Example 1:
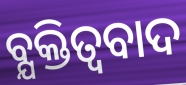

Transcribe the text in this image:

ବ୍ଯକ୍ତିତ୍ଵବାଦ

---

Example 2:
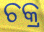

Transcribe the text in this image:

ଚକ୍ର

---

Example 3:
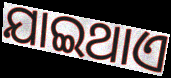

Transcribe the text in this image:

ଯାଇଥାଏ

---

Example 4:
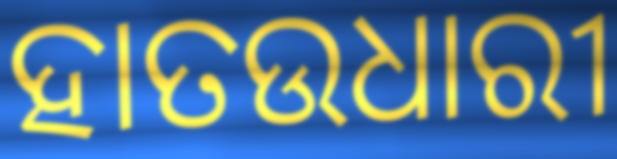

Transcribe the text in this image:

ହାତଉଧାରୀ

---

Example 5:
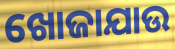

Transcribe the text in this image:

ଖୋଜାଯାଉ